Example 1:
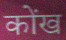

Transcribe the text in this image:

कोंख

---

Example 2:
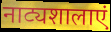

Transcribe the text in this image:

नाट्यशालाएं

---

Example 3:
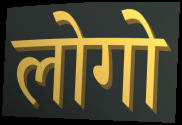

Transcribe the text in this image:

लोगो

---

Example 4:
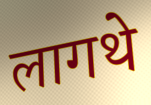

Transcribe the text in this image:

लागथे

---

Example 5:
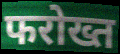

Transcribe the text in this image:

फरोख्त